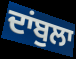
ਦਾਂਬੁਲਾ